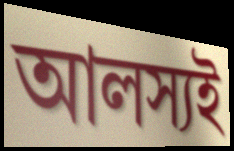
আলস্যই